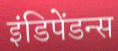
इंडिपेंडन्स